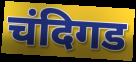
चंदिगड